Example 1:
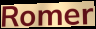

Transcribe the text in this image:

Romer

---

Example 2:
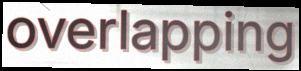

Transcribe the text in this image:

overlapping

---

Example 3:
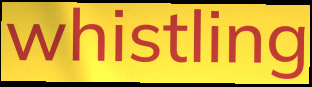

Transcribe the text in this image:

whistling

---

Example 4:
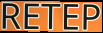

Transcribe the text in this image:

RETEP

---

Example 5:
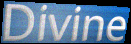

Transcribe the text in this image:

Divine